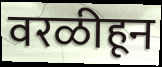
वरळीहून